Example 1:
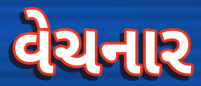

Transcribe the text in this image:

વેચનાર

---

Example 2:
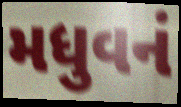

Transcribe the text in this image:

મધુવનં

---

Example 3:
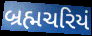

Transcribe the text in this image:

બ્રહ્મચરિયં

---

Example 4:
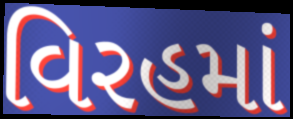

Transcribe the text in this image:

વિરહમાં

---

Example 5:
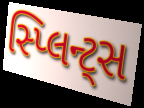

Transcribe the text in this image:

સ્પ્લિન્ટ્સ